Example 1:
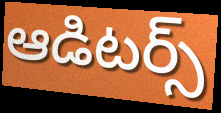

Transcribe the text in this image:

ఆడిటర్స్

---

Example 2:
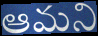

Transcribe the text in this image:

ఆమని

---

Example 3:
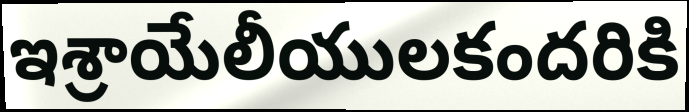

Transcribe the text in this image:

ఇశ్రాయేలీయులకందరికి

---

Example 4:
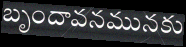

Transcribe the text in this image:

బృందావనమునకు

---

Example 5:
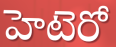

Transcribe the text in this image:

హెటెరో